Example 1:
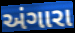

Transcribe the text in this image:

અંગારા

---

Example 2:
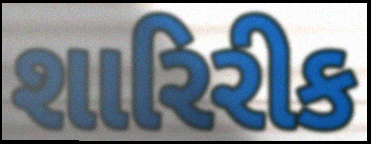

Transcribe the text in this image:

શારિરીક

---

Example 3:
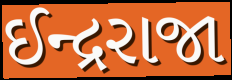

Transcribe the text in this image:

ઈન્દ્રરાજા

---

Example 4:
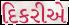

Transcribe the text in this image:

દિકરીએ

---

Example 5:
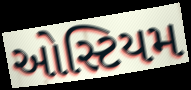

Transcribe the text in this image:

ઓસ્ટિયમ